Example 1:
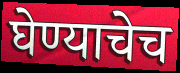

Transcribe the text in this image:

घेण्याचेच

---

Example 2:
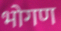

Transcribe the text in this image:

भोगण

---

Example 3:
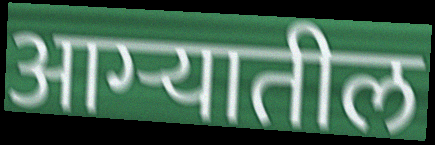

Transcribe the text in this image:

आग्ऱ्यातील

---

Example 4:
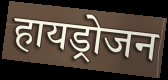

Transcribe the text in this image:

हायड्रोजन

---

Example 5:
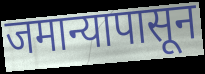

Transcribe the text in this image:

जमान्यापासून